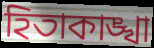
হিতাকাঙ্খা